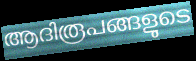
ആദിരൂപങ്ങളുടെ